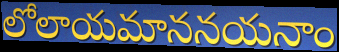
లోలాయమాననయనాం